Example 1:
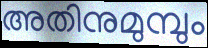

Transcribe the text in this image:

അതിനുമുമ്പും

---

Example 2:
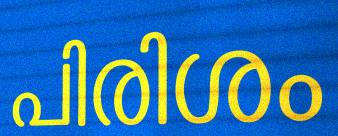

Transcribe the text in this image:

പിരിശം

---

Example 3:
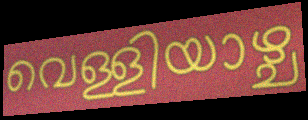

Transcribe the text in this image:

വെള്ളിയാഴ്ച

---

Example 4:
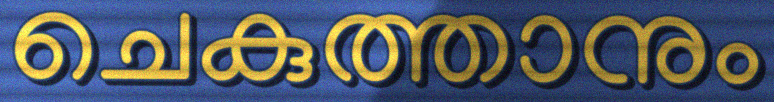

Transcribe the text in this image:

ചെകുത്താനും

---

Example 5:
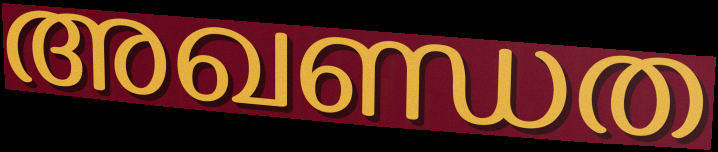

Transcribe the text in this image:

അഖണ്ഡത